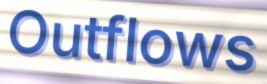
Outflows